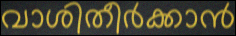
വാശിതീർക്കാൻ